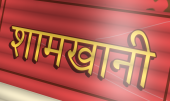
शामखानी